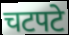
चटपटे